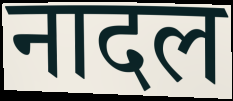
नादल